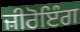
ਜ਼ੀਰੋਇੰਗ